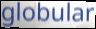
globular